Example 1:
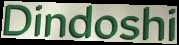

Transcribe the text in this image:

Dindoshi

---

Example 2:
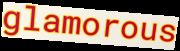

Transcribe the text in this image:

glamorous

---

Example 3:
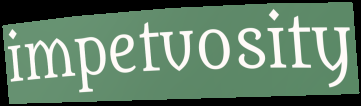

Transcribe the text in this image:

impetuosity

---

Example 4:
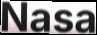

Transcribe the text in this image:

Nasa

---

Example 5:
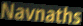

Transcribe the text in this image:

Navnaths